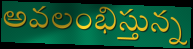
అవలంభిస్తున్న